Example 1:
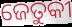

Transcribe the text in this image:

ଜେତୁକୀ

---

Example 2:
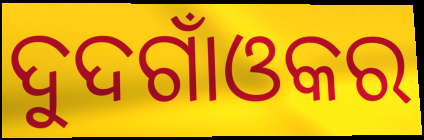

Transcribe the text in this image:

ଦୁଦଗାଁଓକର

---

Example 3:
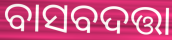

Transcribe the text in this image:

ବାସବଦତ୍ତା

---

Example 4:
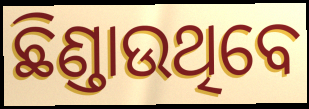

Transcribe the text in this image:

ଛିଣ୍ଡାଉଥିବେ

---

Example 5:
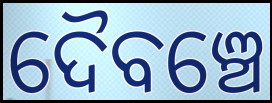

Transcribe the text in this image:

ଦୈବଞ୍ଚେ